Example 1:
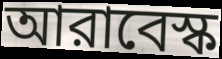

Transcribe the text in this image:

আরাবেস্ক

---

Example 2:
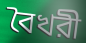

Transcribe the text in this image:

বৈখরী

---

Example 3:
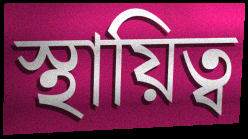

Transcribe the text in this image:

স্থায়িত্ব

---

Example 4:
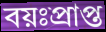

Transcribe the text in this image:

বয়ঃপ্রাপ্ত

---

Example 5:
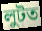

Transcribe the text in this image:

লুটত